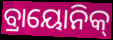
ବ୍ରାୟୋନିକ୍